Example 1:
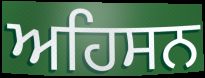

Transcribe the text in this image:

ਅਹਿਸਨ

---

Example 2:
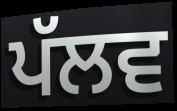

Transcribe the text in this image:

ਪੱਲਵ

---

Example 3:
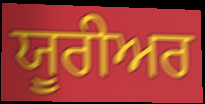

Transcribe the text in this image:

ਯੂਰੀਅਰ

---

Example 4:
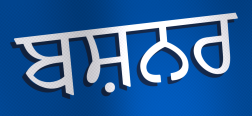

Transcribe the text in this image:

ਬਸ਼ਨਰ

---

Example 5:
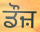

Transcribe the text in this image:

ਡੌਜ਼